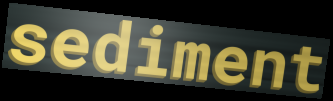
sediment